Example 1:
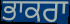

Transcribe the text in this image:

ਭਾਕਰਾ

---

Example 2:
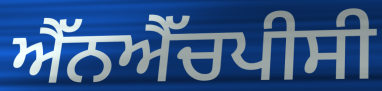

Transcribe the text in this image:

ਐੱਨਐੱਚਪੀਸੀ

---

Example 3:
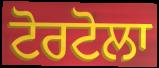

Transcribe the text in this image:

ਟੋਰਟੋਲਾ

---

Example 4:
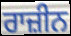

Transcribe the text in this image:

ਰਾਜ਼ੀਨ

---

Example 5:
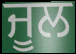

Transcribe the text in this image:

ਜੂਲ